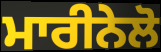
ਮਾਰੀਨੇਲੋ